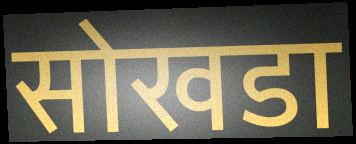
सोखडा